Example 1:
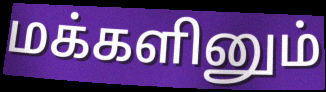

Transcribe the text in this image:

மக்களினும்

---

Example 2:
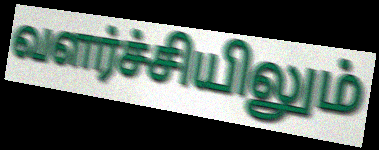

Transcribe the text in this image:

வளர்ச்சியிலும்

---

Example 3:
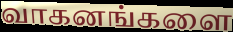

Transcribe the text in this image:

வாகனங்களை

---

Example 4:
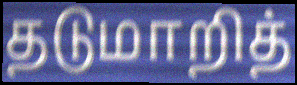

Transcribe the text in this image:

தடுமாறித்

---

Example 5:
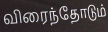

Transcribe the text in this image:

விரைந்தோடும்